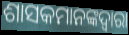
ଶାସକମାନଙ୍କଦ୍ୱାରା